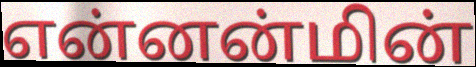
என்னன்மின்